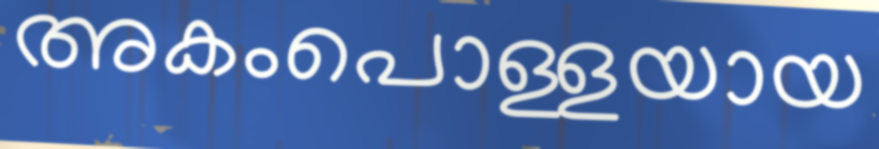
അകംപൊള്ളയായ